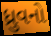
ધ્રુવનો